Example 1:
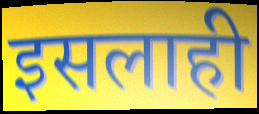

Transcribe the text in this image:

इसलाही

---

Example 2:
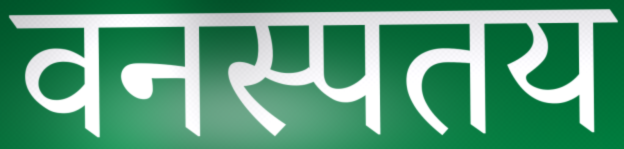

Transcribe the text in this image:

वनस्पतय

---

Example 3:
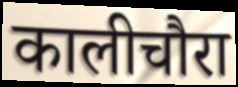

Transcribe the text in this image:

कालीचौरा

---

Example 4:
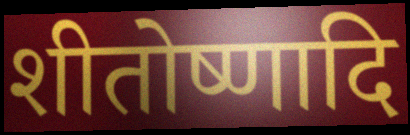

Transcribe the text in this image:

शीतोष्णादि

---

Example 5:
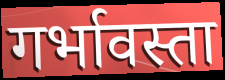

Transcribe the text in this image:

गर्भावस्ता